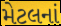
મેટલનાં